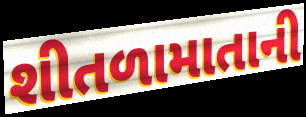
શીતળામાતાની